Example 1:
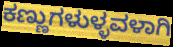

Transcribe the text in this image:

ಕಣ್ಣುಗಳುಳ್ಳವಳಾಗಿ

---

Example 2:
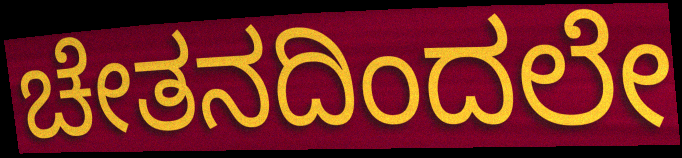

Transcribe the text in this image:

ಚೇತನದಿಂದಲೇ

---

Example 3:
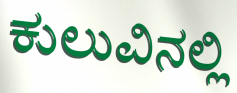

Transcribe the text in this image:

ಕುಲುವಿನಲ್ಲಿ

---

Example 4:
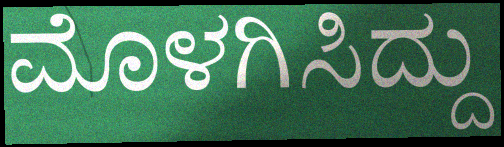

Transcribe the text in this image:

ಮೊಳಗಿಸಿದ್ದು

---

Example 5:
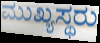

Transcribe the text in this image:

ಮುಖ್ಯಸ್ಥರು